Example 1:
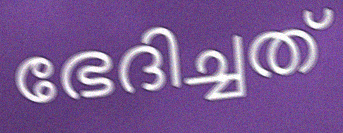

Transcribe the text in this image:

ഭേദിച്ചത്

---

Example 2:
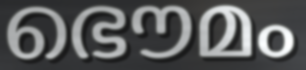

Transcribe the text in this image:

ഭൌമം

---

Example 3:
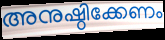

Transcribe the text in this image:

അനുഷ്ഠിക്കേണം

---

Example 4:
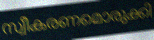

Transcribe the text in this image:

സ്വീകരണമൊരുക്കി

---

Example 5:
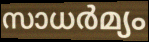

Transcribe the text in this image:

സാധർമ്യം